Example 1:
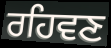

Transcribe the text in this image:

ਰਹਿਵਣ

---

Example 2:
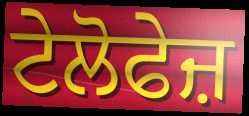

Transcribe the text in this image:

ਟੇਲੋਫੇਜ਼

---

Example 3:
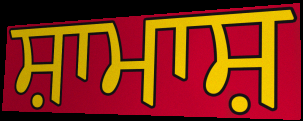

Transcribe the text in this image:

ਸ਼ਾਮਾਸ਼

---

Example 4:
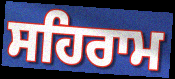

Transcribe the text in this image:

ਸਹਿਰਾਮ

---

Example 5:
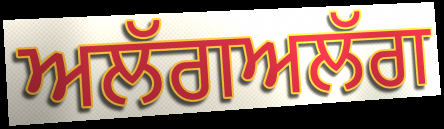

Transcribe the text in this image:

ਅਲੱਗਅਲੱਗ